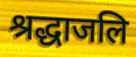
श्रद्धाजलि